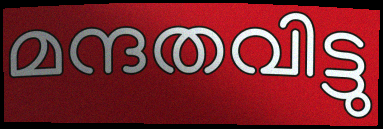
മന്ദതവിട്ടു